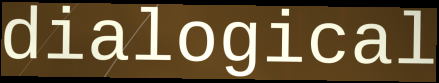
dialogical